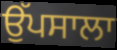
ਉੱਪਸਾਲਾ